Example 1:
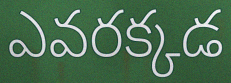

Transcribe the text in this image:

ఎవరక్కడ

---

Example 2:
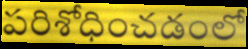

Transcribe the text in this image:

పరిశోధించడంలో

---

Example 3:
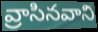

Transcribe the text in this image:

వ్రాసినవాని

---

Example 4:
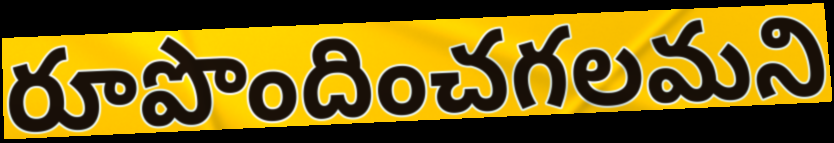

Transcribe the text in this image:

రూపొందించగలమని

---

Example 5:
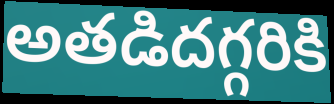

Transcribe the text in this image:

అతడిదగ్గరికి